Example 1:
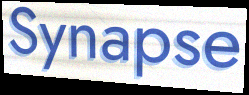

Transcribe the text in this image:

Synapse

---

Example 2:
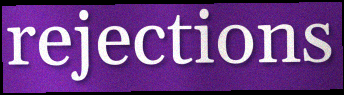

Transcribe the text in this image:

rejections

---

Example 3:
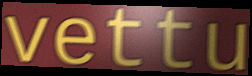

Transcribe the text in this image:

vettu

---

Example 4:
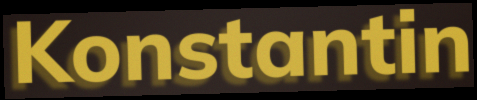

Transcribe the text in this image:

Konstantin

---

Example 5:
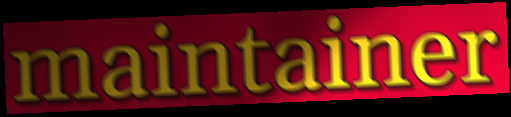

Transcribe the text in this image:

maintainer